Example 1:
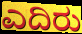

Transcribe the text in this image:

ಎದಿರು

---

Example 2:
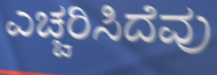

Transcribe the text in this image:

ಎಚ್ಚರಿಸಿದೆವು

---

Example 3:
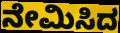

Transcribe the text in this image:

ನೇಮಿಸಿದ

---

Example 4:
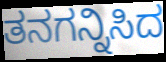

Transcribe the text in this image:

ತನಗನ್ನಿಸಿದ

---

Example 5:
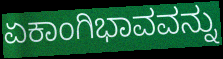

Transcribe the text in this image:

ಏಕಾಂಗಿಭಾವವನ್ನು